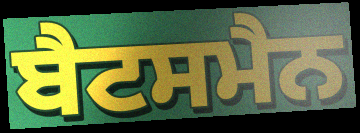
ਬੈਟਸਮੈਨ